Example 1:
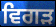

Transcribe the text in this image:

ਵਿਗੜ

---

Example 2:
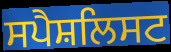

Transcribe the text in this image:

ਸਪੈਸ਼ਲਿਸਟ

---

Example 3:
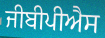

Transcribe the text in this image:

ਜੀਬੀਪੀਐਸ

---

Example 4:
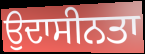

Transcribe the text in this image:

ਉਦਾਸੀਨਤਾ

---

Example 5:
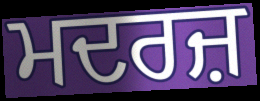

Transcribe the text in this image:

ਮਦਰਜ਼